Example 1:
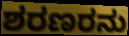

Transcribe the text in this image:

ಶರಣರನು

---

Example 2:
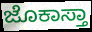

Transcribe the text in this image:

ಜೊಕಾಸ್ತಾ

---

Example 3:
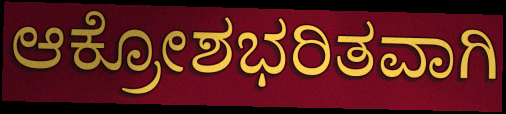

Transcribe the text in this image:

ಆಕ್ರೋಶಭರಿತವಾಗಿ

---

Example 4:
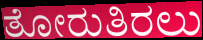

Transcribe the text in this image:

ತೋರುತಿರಲು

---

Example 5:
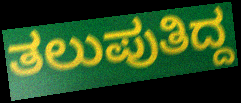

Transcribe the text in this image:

ತಲುಪುತಿದ್ದ